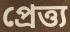
প্রেত্ত্য